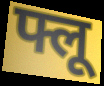
फ्लू